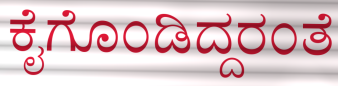
ಕೈಗೊಂಡಿದ್ದರಂತೆ